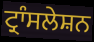
ਟ੍ਰਾੰਸਲੇਸ਼ਨ